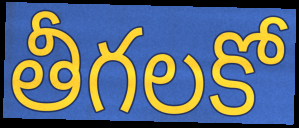
తీగలకో